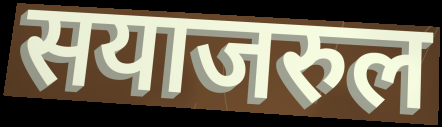
सयाजरुल